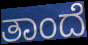
ತಾಂದೆ